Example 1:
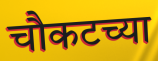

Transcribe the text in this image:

चौकटच्या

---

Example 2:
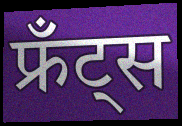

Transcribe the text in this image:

फ्रँट्स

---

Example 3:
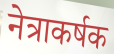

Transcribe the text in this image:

नेत्राकर्षक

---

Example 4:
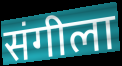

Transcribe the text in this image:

संगीला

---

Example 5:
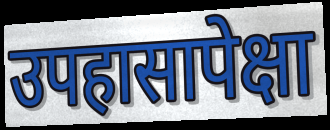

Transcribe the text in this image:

उपहासापेक्षा